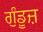
ਗੁੰਡੂਜ਼